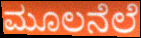
ಮೂಲನೆಲೆ